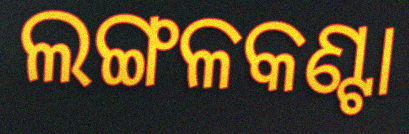
ଲଙ୍ଗଳକଣ୍ଟା